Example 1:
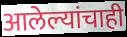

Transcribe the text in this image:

आलेल्यांचाही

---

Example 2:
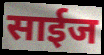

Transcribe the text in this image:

साईज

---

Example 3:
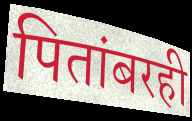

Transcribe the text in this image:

पितांबरही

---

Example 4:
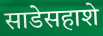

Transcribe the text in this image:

साडेसहाशे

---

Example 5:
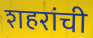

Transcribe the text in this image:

शहरांची